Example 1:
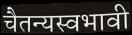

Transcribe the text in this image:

चैतन्यस्वभावी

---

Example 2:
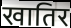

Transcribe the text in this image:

खातिर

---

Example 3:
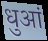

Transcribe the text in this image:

धुआं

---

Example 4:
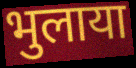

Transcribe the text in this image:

भुलाया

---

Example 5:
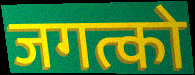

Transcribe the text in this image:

जगत्को